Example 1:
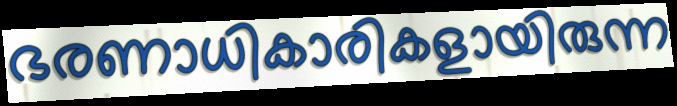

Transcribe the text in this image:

ഭരണാധികാരികളായിരുന്ന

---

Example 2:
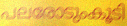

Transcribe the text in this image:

പലരോടുംകൂടി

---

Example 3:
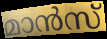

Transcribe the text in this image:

മാൻസ്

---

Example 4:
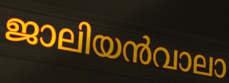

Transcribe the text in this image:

ജാലിയൻവാലാ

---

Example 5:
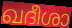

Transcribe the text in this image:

ഖദീശാ